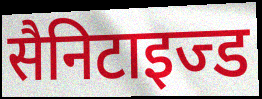
सैनिटाइज्ड